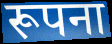
रूपना